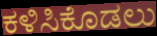
ಕಳಿಸಿಕೊಡಲು